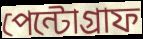
পেন্টোগ্রাফ